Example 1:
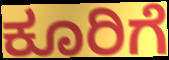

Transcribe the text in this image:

ಕೂರಿಗೆ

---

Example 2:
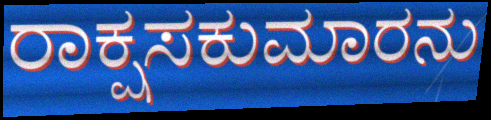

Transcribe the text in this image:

ರಾಕ್ಷಸಕುಮಾರನು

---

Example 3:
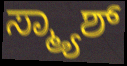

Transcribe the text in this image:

ಸ್ಮ್ಯಾಶ್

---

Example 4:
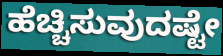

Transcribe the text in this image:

ಹೆಚ್ಚಿಸುವುದಷ್ಟೇ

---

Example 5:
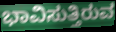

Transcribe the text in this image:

ಭಾವಿಸುತ್ತಿರುವ